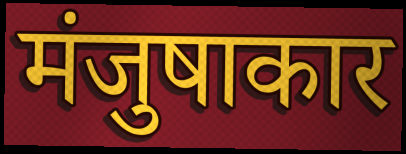
मंजुषाकार